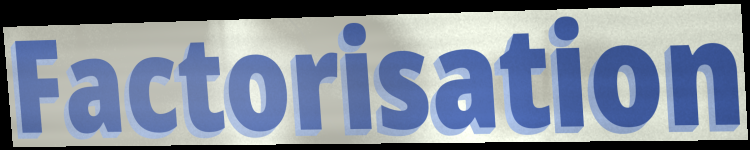
Factorisation